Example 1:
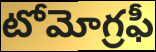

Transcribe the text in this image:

టోమోగ్రఫీ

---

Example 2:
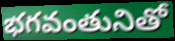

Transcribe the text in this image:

భగవంతునితో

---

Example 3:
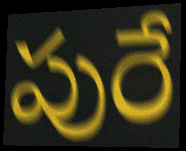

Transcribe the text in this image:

పురే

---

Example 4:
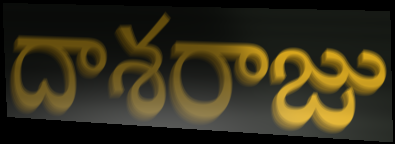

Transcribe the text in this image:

దాశరాజు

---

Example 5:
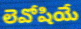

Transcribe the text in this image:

లెవోషియే